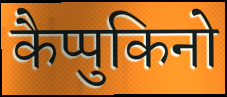
कैप्पुकिनो